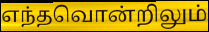
எந்தவொன்றிலும்